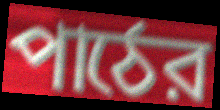
পাঠের